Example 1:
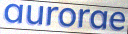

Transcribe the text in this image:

aurorae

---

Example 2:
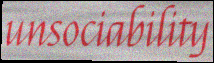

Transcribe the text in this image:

unsociability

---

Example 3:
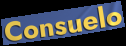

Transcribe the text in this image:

Consuelo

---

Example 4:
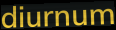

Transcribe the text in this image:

diurnum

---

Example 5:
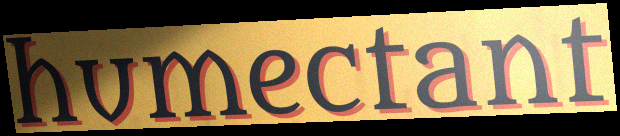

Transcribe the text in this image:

humectant